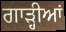
ਗਾੜ੍ਹੀਆਂ